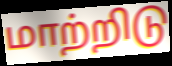
மாற்றிடு